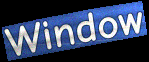
Window